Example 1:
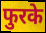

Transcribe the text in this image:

फुरके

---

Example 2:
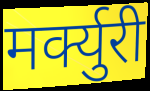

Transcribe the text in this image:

मर्क्युरी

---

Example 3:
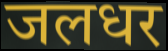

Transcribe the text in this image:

जलधर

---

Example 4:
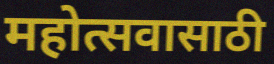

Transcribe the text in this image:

महोत्सवासाठी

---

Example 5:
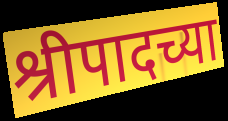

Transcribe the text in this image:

श्रीपादच्या